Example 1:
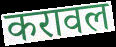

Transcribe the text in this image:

करावल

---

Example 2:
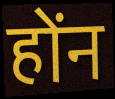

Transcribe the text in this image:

होंन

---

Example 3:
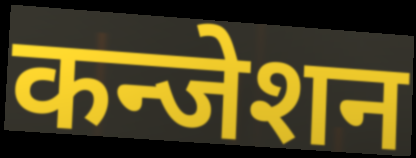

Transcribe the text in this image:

कन्जेशन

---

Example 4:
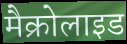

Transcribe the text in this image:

मैक्रोलाइड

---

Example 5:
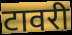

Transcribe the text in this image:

टावरी